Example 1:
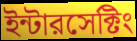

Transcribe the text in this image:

ইন্টারসেক্টিং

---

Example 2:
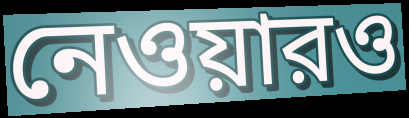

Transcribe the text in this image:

নেওয়ারও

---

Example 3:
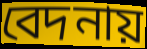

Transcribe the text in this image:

বেদনায়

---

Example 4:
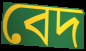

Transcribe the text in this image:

বেদ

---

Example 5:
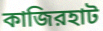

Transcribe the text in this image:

কাজিরহাট